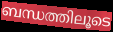
ബന്ധത്തിലൂടെ